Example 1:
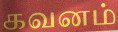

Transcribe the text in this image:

கவனம்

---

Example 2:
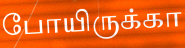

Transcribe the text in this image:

போயிருக்கா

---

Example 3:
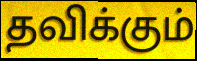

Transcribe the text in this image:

தவிக்கும்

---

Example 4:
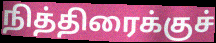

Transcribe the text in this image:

நித்திரைக்குச்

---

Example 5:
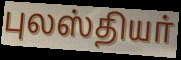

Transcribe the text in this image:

புலஸ்தியர்